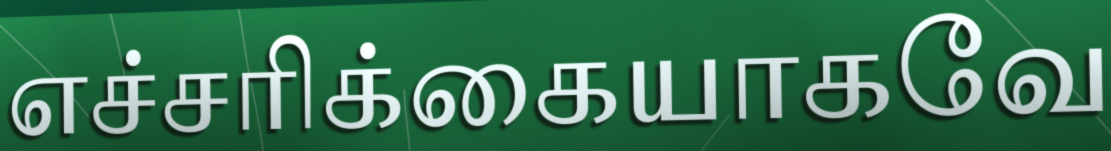
எச்சரிக்கையாகவே